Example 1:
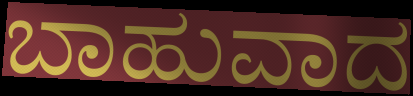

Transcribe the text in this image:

ಬಾಹುವಾದ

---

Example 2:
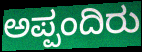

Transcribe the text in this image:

ಅಪ್ಪಂದಿರು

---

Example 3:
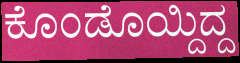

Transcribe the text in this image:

ಕೊಂಡೊಯ್ದಿದ್ದ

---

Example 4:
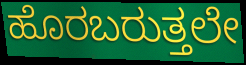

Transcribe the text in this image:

ಹೊರಬರುತ್ತಲೇ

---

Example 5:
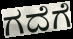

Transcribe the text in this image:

ಗದೆಗೆ